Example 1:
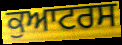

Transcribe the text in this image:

ਕੁਆਟਰਸ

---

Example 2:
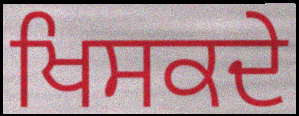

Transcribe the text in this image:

ਖਿਸਕਦੇ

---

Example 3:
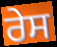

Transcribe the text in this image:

ਰੇਸ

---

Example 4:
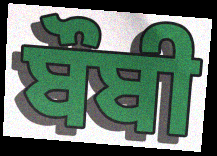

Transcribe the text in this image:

ਬੌਬੀ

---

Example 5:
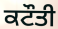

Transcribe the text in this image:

ਕਟੌਤੀ